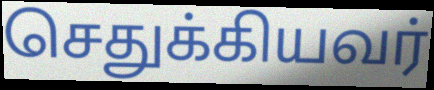
செதுக்கியவர்